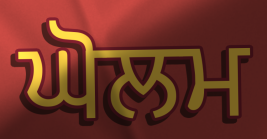
ਘੋਲਮ